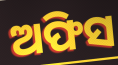
ଅଫିସ